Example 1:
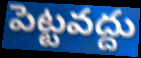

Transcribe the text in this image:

పెట్టవద్దు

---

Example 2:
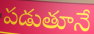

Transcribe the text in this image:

పడుతూనే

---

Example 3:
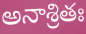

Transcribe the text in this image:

అనాశ్రితః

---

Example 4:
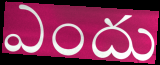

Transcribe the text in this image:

ఎందు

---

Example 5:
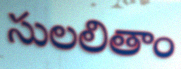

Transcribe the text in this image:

సులలితాం